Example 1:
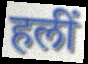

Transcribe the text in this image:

हलीं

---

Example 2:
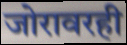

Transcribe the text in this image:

जोरावरही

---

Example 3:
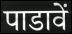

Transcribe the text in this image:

पाडावें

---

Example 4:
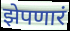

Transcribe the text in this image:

झेपणारं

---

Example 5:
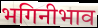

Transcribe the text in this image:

भगिनीभाव